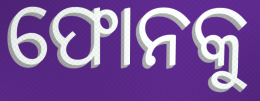
ଫୋନକୁ